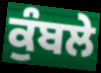
ਕੁੰਬਲੇ